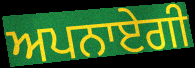
ਅਪਨਾਏਗੀ